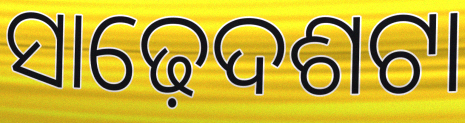
ସାଢ଼େଦଶଟା